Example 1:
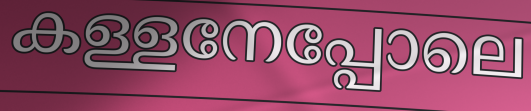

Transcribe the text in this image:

കള്ളനേപ്പോലെ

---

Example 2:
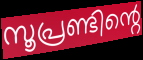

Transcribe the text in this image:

സൂപ്രണ്ടിന്റെ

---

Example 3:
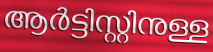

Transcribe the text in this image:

ആർട്ടിസ്റ്റിനുള്ള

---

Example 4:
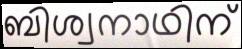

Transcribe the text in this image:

ബിശ്വനാഥിന്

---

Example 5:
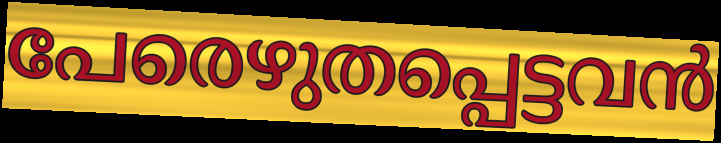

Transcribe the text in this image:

പേരെഴുതപ്പെട്ടവൻ